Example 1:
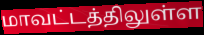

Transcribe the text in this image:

மாவட்டத்திலுள்ள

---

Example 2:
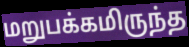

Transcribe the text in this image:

மறுபக்கமிருந்த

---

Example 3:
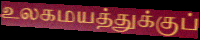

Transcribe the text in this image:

உலகமயத்துக்குப்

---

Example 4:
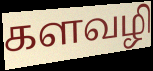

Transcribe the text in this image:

களவழி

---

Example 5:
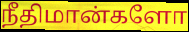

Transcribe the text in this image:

நீதிமான்களோ